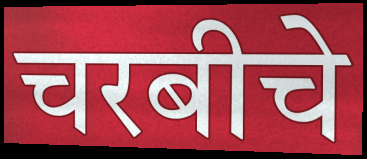
चरबीचे